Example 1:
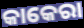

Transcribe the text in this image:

କାକେରା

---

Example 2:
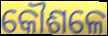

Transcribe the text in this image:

କୌଶଳେ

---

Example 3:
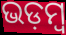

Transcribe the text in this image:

ଭଡ଼ମ୍ବ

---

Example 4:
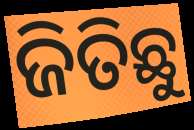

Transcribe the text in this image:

ଜିତିଛୁ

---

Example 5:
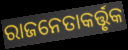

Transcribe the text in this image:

ରାଜନେତାକର୍ତ୍ତୃକ